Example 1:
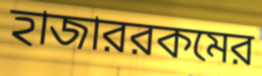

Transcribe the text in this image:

হাজাররকমের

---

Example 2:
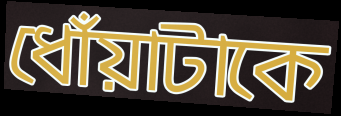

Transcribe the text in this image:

ধোঁয়াটাকে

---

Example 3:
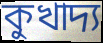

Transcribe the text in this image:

কুখাদ্য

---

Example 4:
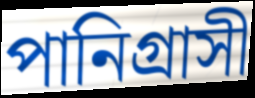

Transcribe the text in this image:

পানিগ্রাসী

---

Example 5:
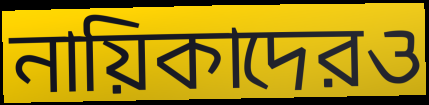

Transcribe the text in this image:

নায়িকাদেরও